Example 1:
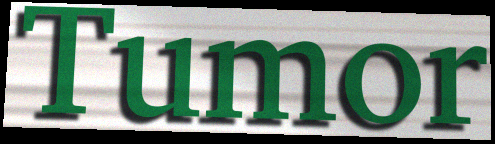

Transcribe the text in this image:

Tumor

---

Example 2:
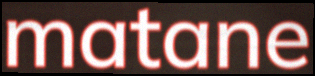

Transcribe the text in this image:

matane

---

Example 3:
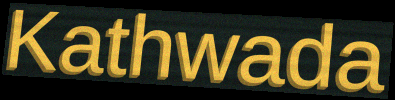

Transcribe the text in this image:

Kathwada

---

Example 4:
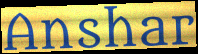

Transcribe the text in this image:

Anshar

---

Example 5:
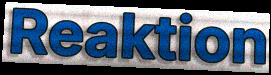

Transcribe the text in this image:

Reaktion